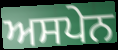
ਅਸਪੇਨ